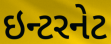
ઇન્ટરનેટ